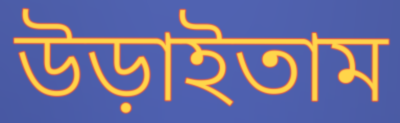
উড়াইতাম